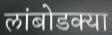
लांबोडक्या